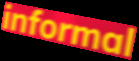
informal